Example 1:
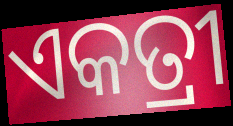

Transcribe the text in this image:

ଏକତ୍ରୀ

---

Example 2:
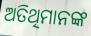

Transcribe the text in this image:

ଅତିଥିମାନଙ୍କ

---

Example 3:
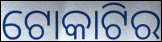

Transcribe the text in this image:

ଟୋକାଟିର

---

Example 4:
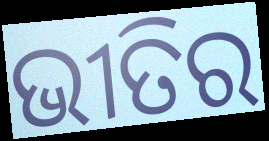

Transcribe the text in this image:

ଭୀତିର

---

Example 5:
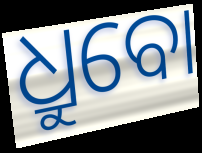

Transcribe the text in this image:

ଧ୍ରୁବୋ